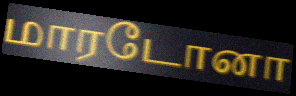
மாரடோனா